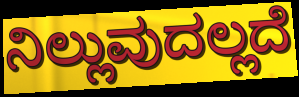
ನಿಲ್ಲುವುದಲ್ಲದೆ